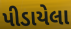
પીડાયેલા